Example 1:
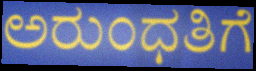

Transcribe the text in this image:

ಅರುಂಧತಿಗೆ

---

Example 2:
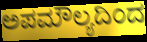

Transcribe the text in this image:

ಅಪಮೌಲ್ಯದಿಂದ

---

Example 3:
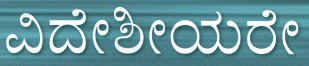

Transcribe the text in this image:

ವಿದೇಶೀಯರೇ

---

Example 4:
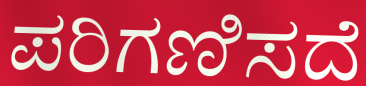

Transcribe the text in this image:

ಪರಿಗಣಿಸದೆ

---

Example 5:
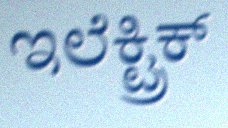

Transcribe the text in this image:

ಇಲೆಕ್ಟ್ರಿಕ್